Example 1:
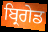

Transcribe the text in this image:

ਬ੍ਰਿਗੇਡ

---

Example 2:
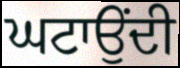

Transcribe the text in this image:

ਘਟਾਉਂਦੀ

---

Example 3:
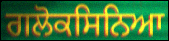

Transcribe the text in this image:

ਗਲੋਕਸਿਨਿਆ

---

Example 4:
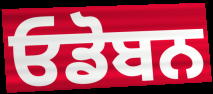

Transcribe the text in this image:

ਓਡੋਬਨ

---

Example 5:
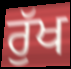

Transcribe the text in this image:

ਰੁੱਖ